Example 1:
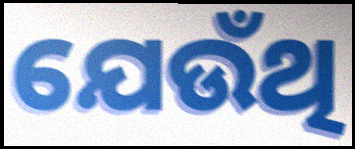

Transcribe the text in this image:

ଯେଉଁଥି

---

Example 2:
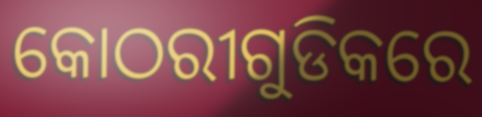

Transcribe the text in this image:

କୋଠରୀଗୁଡିକରେ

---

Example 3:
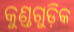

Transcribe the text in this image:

କୁଣ୍ଡଗୁଡ଼ିକ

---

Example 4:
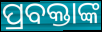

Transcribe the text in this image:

ପ୍ରବକ୍ତାଙ୍କ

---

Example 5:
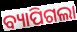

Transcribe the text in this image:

ବ୍ୟାପିଗଲା